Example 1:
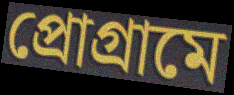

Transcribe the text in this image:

প্রোগ্রামে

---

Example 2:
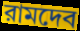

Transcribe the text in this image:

রামদেব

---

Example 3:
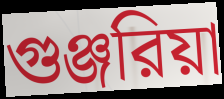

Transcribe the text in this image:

গুঞ্জরিয়া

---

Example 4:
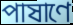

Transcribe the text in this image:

পাষাণে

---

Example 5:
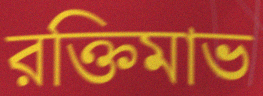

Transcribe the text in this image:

রক্তিমাভ